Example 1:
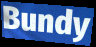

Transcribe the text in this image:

Bundy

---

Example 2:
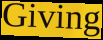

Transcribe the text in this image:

Giving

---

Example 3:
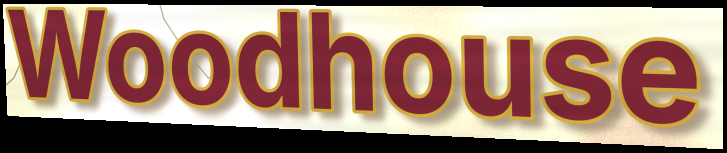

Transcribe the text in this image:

Woodhouse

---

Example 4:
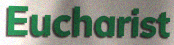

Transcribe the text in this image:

Eucharist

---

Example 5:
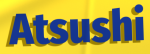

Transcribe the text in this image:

Atsushi